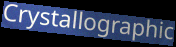
Crystallographic